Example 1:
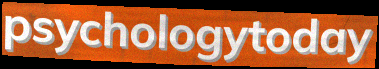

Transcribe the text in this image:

psychologytoday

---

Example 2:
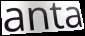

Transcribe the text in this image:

anta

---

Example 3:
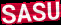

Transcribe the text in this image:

SASU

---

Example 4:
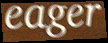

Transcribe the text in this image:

eager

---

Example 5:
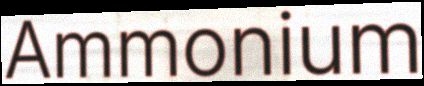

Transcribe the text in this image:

Ammonium